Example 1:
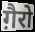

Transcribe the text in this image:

ग़ैरो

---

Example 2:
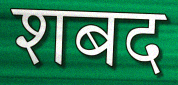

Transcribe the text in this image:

शबद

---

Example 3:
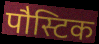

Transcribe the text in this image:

पौस्टिक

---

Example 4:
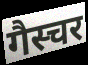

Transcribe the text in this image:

गैस्चर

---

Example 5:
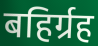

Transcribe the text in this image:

बहिर्ग्रह